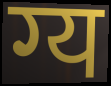
ग्य